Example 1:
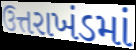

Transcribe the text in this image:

ઉત્તરાખંડમાં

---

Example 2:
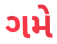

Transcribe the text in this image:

ગમે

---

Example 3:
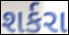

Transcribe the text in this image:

શર્કરા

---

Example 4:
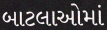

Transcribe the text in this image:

બાટલાઓમાં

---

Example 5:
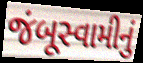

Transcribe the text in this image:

જંબૂસ્વામીનું